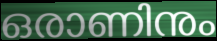
ഒരാണിനും